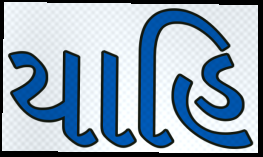
યાહિ